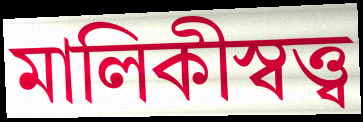
মালিকীস্বত্ত্ব